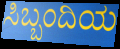
ಸಿಬ್ಬಂದಿಯ